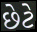
છેટે